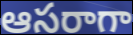
ఆసరాగా